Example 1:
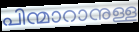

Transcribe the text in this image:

പിന്മാറാനുള്ള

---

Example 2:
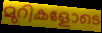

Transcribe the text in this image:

മുറികളോടെ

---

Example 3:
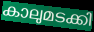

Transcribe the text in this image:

കാലുമടക്കി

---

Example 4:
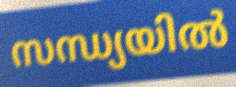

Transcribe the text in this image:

സന്ധ്യയിൽ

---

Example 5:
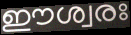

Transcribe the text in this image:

ഈശ്വരഃ